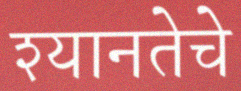
श्यानतेचे